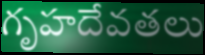
గృహదేవతలు